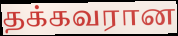
தக்கவரான